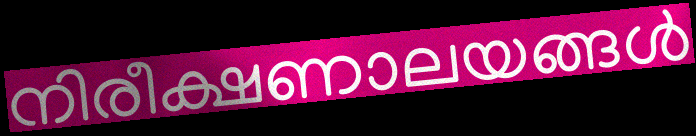
നിരീക്ഷണാലയങ്ങൾ